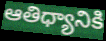
ఆతిధ్యానికి